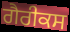
ਗੈਰੀਕਸ